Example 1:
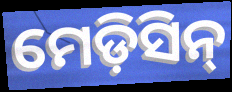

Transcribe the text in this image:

ମେଡ଼ିସିନ୍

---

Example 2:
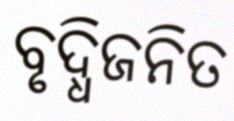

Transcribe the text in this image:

ବୃଦ୍ଧିଜନିତ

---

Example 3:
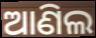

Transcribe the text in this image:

ଆଣିଲ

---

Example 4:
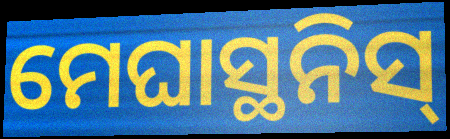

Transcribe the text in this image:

ମେଘାସ୍ଥନିସ୍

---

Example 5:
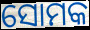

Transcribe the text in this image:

ସୋମକ